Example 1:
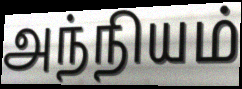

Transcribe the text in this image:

அந்நியம்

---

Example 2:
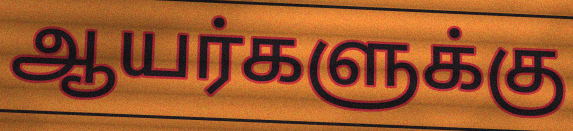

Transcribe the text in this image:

ஆயர்களுக்கு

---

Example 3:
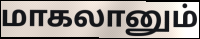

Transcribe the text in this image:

மாகலானும்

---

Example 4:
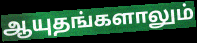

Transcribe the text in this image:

ஆயுதங்களாலும்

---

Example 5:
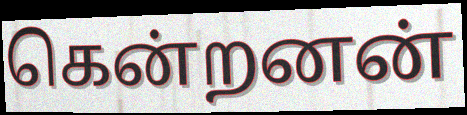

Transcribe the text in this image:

கென்றனன்